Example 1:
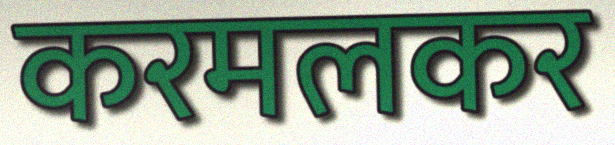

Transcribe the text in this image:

करमलकर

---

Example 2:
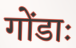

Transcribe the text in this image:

गोंडाः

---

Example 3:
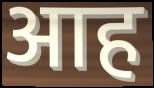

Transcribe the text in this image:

आह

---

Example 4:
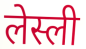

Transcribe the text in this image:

लेस्ली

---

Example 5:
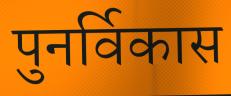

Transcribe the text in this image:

पुनर्विकास